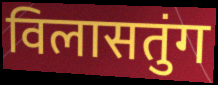
विलासतुंग